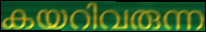
കയറിവരുന്ന